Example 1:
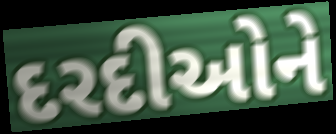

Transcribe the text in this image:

દરદીઓને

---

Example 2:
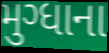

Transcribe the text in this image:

મુગ્ધાના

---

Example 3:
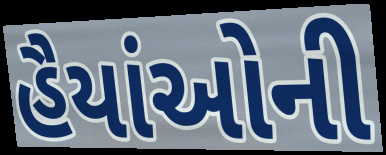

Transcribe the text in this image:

હૈયાંઓની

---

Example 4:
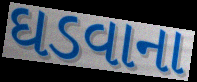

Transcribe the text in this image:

ઘડવાના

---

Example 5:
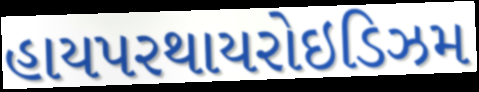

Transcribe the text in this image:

હાયપરથાયરોઇડિઝમ